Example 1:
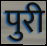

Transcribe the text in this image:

पुरी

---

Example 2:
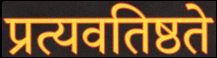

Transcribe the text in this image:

प्रत्यवतिष्ठते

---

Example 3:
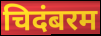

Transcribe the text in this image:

चिदंबरम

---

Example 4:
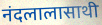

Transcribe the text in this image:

नंदलालासाथी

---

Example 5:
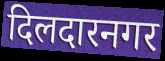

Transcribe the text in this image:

दिलदारनगर